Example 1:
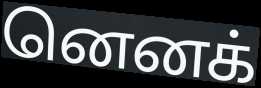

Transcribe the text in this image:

னெனக்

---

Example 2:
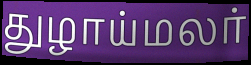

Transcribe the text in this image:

துழாய்மலர்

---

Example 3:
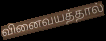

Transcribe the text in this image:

வினைவயத்தால்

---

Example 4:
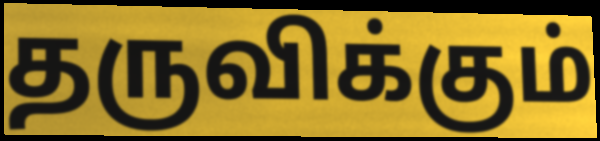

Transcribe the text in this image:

தருவிக்கும்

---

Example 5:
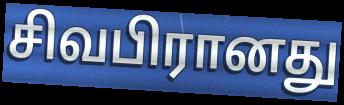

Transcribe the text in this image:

சிவபிரானது